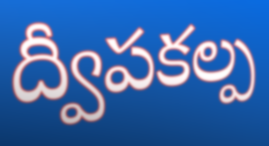
ద్వీపకల్ప